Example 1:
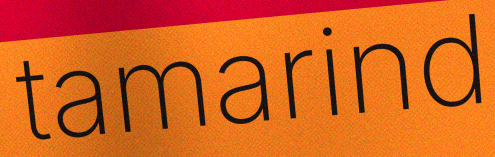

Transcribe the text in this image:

tamarind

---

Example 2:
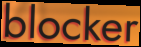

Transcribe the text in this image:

blocker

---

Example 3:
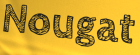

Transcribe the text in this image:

Nougat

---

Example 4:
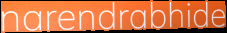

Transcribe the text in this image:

narendrabhide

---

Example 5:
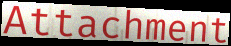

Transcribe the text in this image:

Attachment